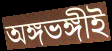
অঙ্গভঙ্গীই